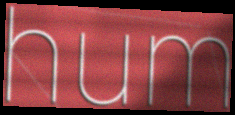
hum